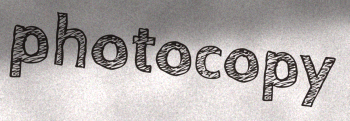
photocopy